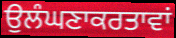
ਉਲੰਘਣਾਕਰਤਾਵਾਂ